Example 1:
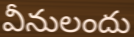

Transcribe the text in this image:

వీనులందు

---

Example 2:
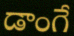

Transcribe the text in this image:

డాంగే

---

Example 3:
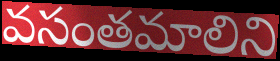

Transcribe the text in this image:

వసంతమాలిని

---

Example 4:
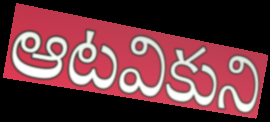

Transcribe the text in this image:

ఆటవికుని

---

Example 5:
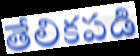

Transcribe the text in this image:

తేలికపడి